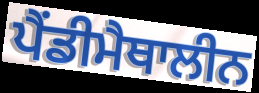
ਪੈਂਡੀਮੈਥਾਲੀਨ